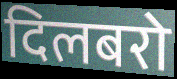
दिलबरो